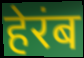
हेरंब